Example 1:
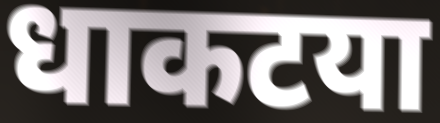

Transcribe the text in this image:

धाकटया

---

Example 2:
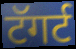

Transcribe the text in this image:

टॅगर्ट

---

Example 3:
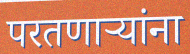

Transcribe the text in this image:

परतणाऱ्यांना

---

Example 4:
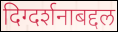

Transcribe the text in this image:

दिग्दर्शनाबद्दल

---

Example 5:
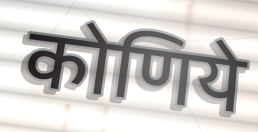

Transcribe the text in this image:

कोणिये